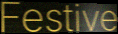
Festive